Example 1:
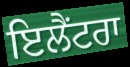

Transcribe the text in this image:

ਇਲੈਂਟਰਾ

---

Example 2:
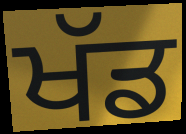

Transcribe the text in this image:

ਖੱਡ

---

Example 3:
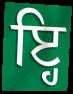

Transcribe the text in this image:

ਇ੍ਹ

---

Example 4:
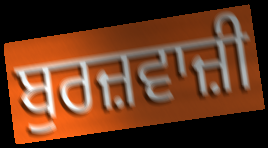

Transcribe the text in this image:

ਬੁਰਜ਼ਵਾਜ਼ੀ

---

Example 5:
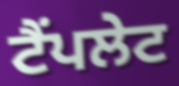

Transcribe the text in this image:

ਟੈਂਪਲੇਟ